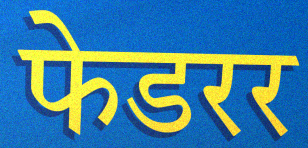
फेडरर